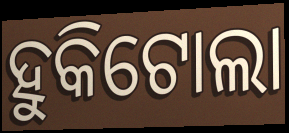
ହୁକିଟୋଲା